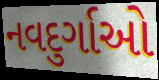
નવદુર્ગાઓ